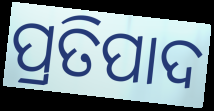
ପ୍ରତିପାଦ